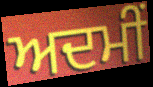
ਅਦਮੀਂ